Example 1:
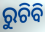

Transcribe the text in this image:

ରୁଚିବି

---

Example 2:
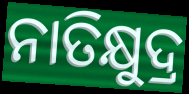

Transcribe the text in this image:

ନାତିକ୍ଷୁଦ୍ର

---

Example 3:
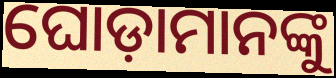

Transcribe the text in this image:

ଘୋଡ଼ାମାନଙ୍କୁ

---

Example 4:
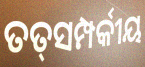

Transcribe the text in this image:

ତତ୍‍ସମ୍ପର୍କୀୟ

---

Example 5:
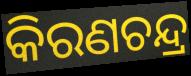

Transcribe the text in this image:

କିରଣଚନ୍ଦ୍ର